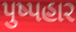
પુષ્પહાર